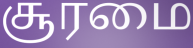
சூரமை